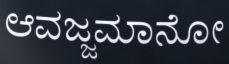
ಆವಜ್ಜಮಾನೋ